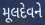
મૂલદેવને